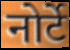
नोर्टे